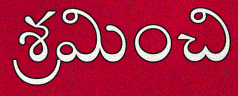
శ్రమించి